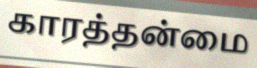
காரத்தன்மை